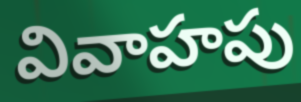
వివాహపు